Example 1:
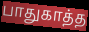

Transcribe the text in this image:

பாதுகாத்த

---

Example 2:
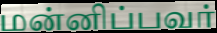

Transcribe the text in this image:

மன்னிப்பவர்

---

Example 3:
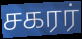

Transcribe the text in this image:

சகரர்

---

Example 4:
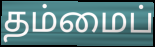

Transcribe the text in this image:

தம்மைப்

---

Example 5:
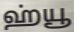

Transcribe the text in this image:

ஹ்யூ